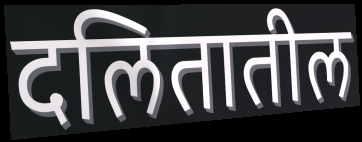
दलितातील